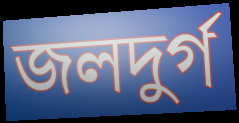
জলদুর্গ